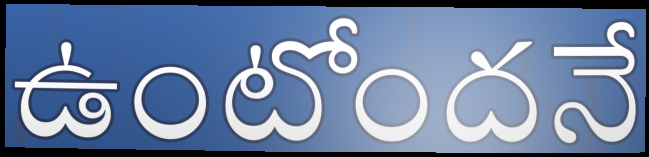
ఉంటోందనే